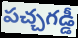
పచ్చగడ్డీ